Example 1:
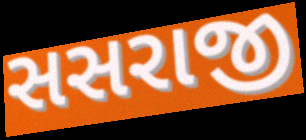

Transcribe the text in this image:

સસરાજી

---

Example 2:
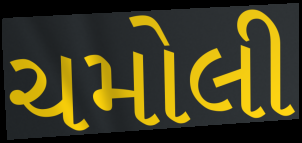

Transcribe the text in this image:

ચમોલી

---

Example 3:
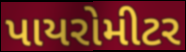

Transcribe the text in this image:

પાયરોમીટર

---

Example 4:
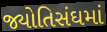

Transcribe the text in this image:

જ્યોતિસંઘમાં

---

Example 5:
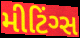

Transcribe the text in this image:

મીટિંગ્સ